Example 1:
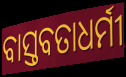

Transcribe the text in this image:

ବାସ୍ତବତାଧର୍ମୀ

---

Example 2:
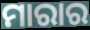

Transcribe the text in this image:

ମାରାର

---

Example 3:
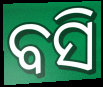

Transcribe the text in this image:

ବସି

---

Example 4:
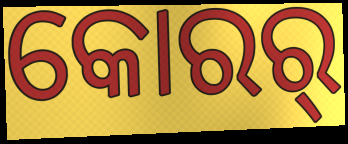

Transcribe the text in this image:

କୋରର୍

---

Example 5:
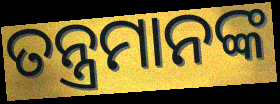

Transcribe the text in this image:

ତନ୍ତ୍ରମାନଙ୍କ